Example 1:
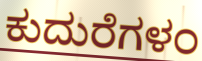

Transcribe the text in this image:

ಕುದುರೆಗಳಂ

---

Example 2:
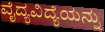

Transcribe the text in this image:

ವೈದ್ಯವಿದ್ಯೆಯನ್ನು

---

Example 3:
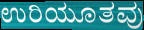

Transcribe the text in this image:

ಉರಿಯೂತವು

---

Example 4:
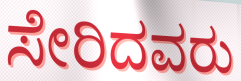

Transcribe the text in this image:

ಸೇರಿದವರು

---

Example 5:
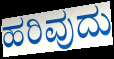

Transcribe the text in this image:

ಹರಿವುದು